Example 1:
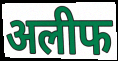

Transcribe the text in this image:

अलीफ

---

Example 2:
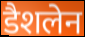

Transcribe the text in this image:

डैशलेन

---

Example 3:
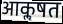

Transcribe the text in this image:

आकॢषत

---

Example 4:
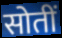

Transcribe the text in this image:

सोतीं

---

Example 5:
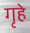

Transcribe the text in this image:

गृहे